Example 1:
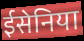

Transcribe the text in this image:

ईसेनिया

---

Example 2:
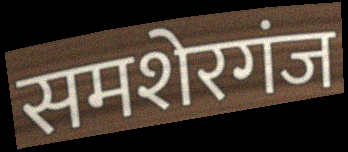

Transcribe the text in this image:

समशेरगंज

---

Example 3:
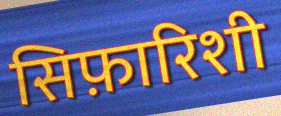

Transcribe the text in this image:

सिफ़ारिशी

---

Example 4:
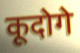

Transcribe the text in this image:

कूदोगे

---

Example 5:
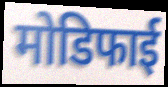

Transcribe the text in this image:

मोडिफाई